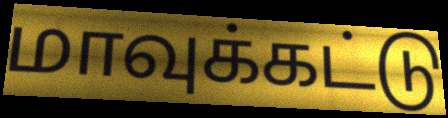
மாவுக்கட்டு